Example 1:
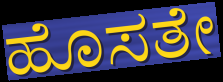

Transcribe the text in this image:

ಹೊಸತೇ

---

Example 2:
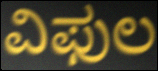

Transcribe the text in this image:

ವಿಫುಲ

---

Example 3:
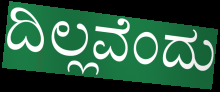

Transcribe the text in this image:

ದಿಲ್ಲವೆಂದು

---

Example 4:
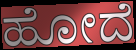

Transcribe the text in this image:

ಹೋದೆ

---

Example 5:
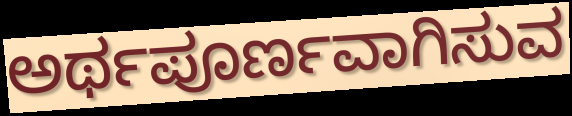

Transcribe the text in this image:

ಅರ್ಥಪೂರ್ಣವಾಗಿಸುವ